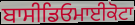
ਬਾਸੀਡਿਓਮਾਈਕੋਟਾ